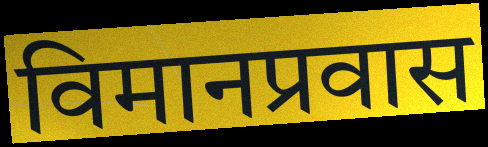
विमानप्रवास